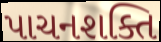
પાચનશક્તિ